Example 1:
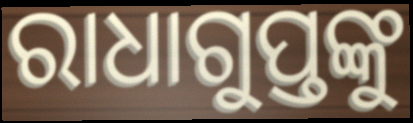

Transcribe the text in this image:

ରାଧାଗୁପ୍ତଙ୍କୁ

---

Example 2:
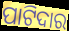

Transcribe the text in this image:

ପାଟିଦାର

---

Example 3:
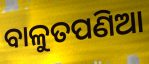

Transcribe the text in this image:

ବାଳୁତପଣିଆ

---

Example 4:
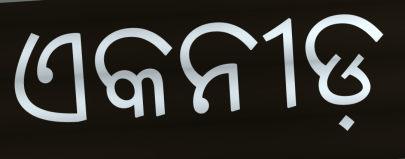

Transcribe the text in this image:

ଏକନୀଡ଼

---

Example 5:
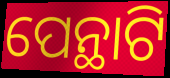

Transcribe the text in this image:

ପେନ୍ଥାଟି